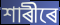
শাৰীৰে